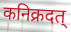
कनिक्रदत्